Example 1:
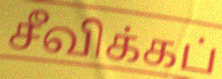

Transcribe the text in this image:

சீவிக்கப்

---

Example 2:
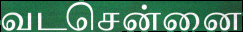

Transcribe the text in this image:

வடசென்னை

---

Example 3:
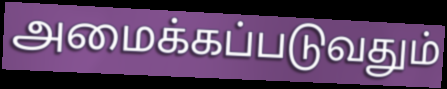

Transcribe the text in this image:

அமைக்கப்படுவதும்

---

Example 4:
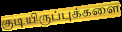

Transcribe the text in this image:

குடியிருப்புக்களை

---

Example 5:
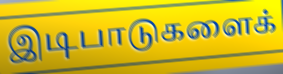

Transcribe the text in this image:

இடிபாடுகளைக்